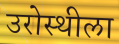
उरोस्थीला